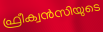
ഫ്രീക്വൻസിയുടെ